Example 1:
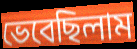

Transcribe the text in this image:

ভেবেছিলাম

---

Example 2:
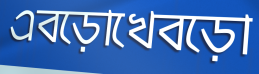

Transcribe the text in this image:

এবড়োখেবড়ো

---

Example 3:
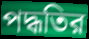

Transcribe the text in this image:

পদ্ধতির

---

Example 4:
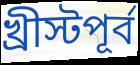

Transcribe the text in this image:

খ্রীস্টপূর্ব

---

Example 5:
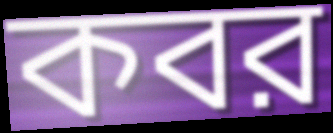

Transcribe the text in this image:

কবর